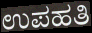
ಉಪಹತಿ